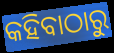
କହିବାଠାରୁ